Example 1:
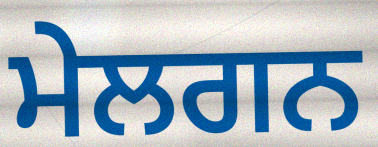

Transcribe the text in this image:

ਮੇਲਗਨ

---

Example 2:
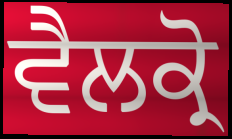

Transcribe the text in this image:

ਵੈਲਕ੍ਰੋ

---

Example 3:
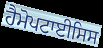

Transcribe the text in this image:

ਹੈਮੋਪਟਾਈਸਿਸ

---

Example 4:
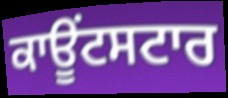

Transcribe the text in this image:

ਕਾਊਂਟਸਟਾਰ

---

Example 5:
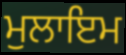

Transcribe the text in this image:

ਮੁਲਾਇਮ